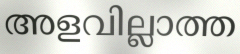
അളവില്ലാത്ത